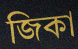
জিকা